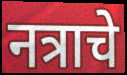
नत्राचे